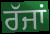
ਰੱਜਾਂ